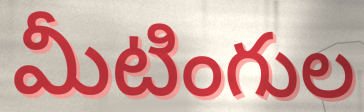
మీటింగుల